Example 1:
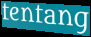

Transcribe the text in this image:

tentang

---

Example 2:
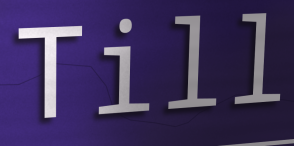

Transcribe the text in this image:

Till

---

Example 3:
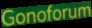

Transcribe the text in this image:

Gonoforum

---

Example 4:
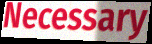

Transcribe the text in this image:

Necessary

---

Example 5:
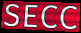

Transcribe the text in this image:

SECC